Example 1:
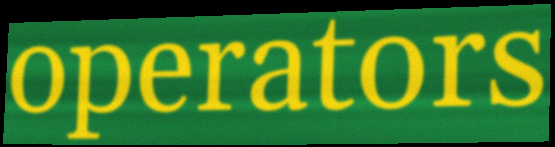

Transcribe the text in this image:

operators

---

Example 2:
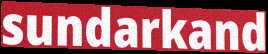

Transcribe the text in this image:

sundarkand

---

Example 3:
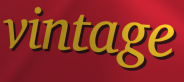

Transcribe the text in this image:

vintage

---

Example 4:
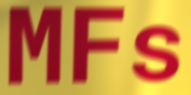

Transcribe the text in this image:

MFs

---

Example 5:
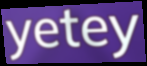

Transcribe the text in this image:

yetey